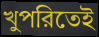
খুপরিতেই